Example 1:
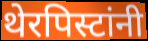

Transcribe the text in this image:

थेरपिस्टांनी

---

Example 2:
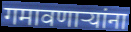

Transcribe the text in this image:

गमावणाऱ्यांना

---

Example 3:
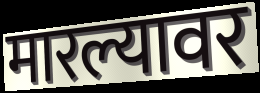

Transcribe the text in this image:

मारल्यावर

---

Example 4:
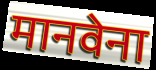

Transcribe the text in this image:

मानवेना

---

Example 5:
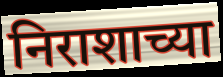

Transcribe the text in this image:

निराशाच्या